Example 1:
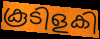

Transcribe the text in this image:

കൂടിളകി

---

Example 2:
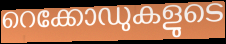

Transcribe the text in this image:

റെക്കോഡുകളുടെ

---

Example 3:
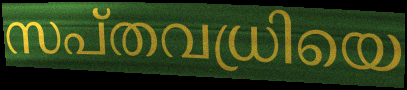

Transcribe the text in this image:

സപ്തവധ്രിയെ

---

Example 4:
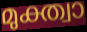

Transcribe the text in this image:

മുക്ത്വാ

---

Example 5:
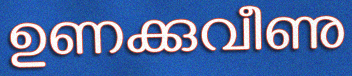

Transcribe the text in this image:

ഉണക്കുവീണു